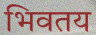
भिवतय